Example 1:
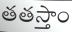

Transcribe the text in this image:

తతస్తాం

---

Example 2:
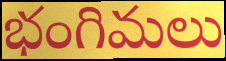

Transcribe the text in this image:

భంగిమలు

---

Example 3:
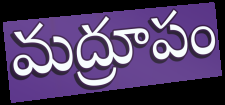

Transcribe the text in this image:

మద్రూపం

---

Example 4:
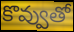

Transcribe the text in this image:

కొవ్వుతో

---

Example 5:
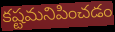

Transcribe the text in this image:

కష్టమనిపించడం